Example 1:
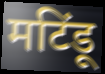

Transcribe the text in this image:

मटिंडू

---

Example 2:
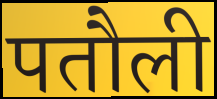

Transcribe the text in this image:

पतौली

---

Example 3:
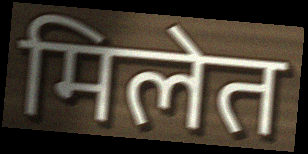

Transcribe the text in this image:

मिलेत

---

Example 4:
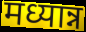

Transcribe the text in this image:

मध्यान्न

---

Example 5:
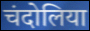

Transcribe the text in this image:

चंदोलिया